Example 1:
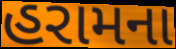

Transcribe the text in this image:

હરામના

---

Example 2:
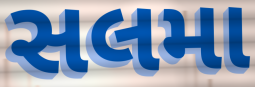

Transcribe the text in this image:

સલમા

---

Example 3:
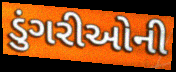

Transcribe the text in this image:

ડુંગરીઓની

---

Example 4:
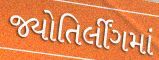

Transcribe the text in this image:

જ્યોતિર્લીંગમાં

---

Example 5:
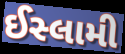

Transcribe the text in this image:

ઈસ્લામી